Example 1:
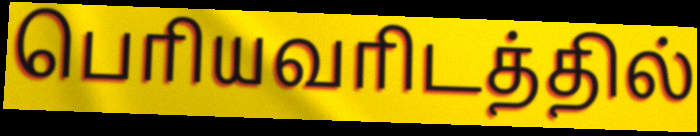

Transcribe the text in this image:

பெரியவரிடத்தில்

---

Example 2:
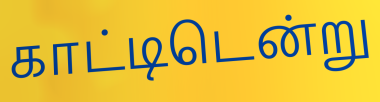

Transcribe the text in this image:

காட்டிடென்று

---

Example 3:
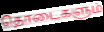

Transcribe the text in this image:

தொடைகளும்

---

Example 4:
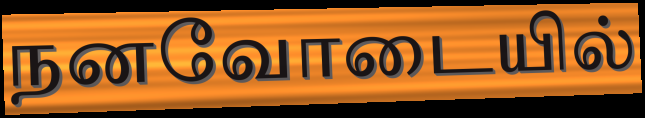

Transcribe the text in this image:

நனவோடையில்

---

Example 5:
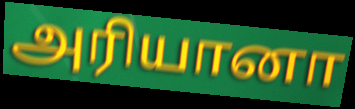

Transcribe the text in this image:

அரியானா